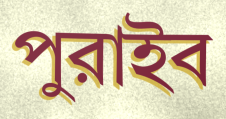
পুরাইব